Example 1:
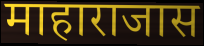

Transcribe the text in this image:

माहाराजास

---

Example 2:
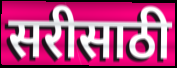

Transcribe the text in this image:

सरीसाठी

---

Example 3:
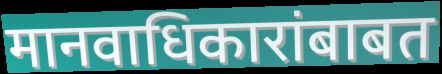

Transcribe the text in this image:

मानवाधिकारांबाबत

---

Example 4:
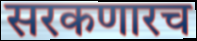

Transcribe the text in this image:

सरकणारच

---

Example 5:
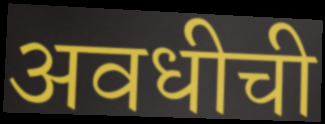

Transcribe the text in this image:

अवधीची